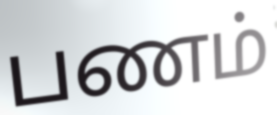
பணம்